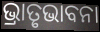
ଭ୍ରାତୃଭାବନା